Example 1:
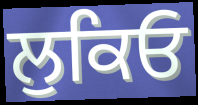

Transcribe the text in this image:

ਲੁਕਿਓ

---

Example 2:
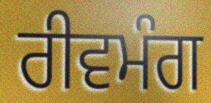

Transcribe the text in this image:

ਰੀਵਮੰਗ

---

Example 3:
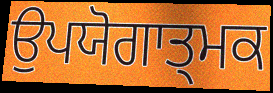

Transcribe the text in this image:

ਉਪਯੋਗਾਤ੍ਮਕ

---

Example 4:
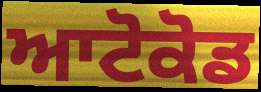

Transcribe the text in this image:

ਆਟੋਕੋਡ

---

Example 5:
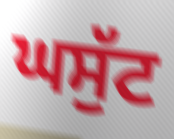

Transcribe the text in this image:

ਘਸੁੱਟ